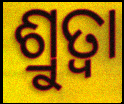
ଶ୍ରୁତ୍ଵା